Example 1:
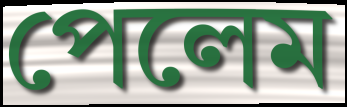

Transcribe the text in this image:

পেলেম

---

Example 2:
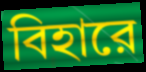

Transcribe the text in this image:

বিহারে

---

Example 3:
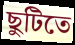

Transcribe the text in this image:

ছুটিতে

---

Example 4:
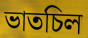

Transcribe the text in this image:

ভাতচিল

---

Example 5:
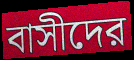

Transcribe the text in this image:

বাসীদের